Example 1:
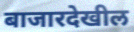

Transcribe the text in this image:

बाजारदेखील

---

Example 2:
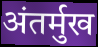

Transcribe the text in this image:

अंतर्मुख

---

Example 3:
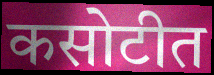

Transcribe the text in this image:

कसोटीत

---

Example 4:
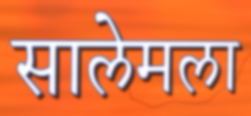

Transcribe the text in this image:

सालेमला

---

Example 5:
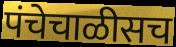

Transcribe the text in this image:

पंचेचाळीसच